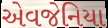
એવજેનિયા